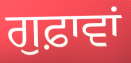
ਗੁਫ਼ਾਵਾਂ